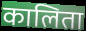
कालिता